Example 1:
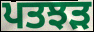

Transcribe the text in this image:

ਪਤਝਡ਼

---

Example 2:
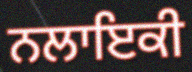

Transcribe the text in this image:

ਨਲਾਇਕੀ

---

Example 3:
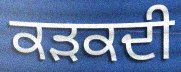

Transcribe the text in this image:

ਕੜਕਦੀ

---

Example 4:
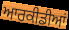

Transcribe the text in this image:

ਆਰਕੀਡੀਆਂ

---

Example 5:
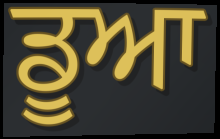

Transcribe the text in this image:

ਡੂਆ